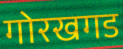
गोरखगड